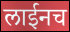
लाईनच